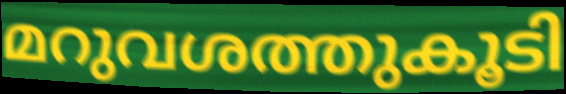
മറുവശത്തുകൂടി